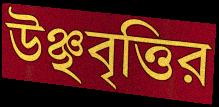
উঞ্ছবৃত্তির